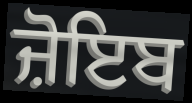
ਜ਼ੋਇਬ